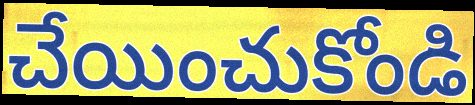
చేయించుకోండి